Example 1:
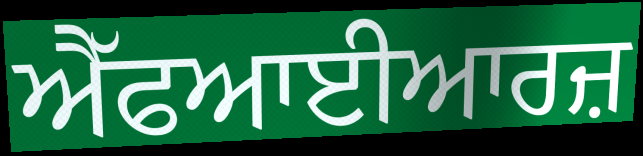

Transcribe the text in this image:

ਐੱਫਆਈਆਰਜ਼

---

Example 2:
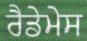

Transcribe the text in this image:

ਰੈਡੇਮੇਸ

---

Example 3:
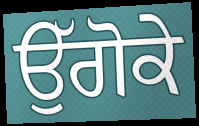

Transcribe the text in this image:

ਉੱਗੋਕੇ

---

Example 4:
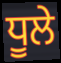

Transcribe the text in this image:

ਧੂਲੇ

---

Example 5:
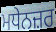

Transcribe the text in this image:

ਮਧੇਨਜ਼ਰ